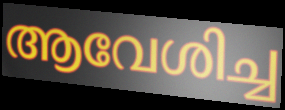
ആവേശിച്ച